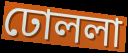
ঢোললা